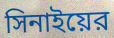
সিনাইয়ের